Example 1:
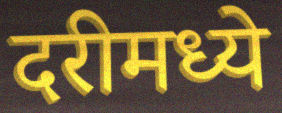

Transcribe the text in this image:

दरीमध्ये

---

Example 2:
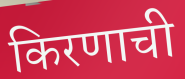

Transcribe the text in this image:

किरणाची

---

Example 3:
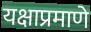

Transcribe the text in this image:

यक्षाप्रमाणे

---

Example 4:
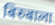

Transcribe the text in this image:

बिरुबाला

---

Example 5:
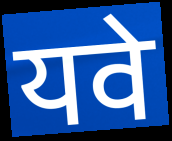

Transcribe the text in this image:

यवे